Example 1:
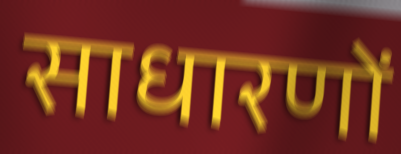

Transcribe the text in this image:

साधारणों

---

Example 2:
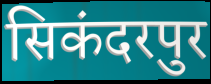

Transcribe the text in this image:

सिकंदरपुर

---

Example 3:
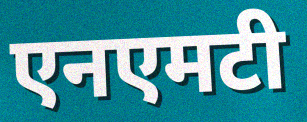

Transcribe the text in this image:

एनएमटी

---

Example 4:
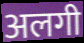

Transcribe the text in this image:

अलगी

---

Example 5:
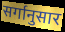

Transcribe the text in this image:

सर्गानुसार